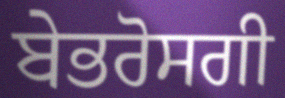
ਬੇਭਰੋਸਗੀ